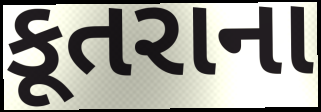
કૂતરાના